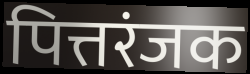
पित्तरंजक